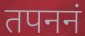
तपननं